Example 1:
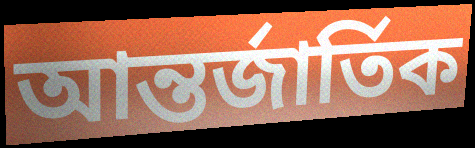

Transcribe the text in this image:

আন্তর্জার্তিক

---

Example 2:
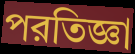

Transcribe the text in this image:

পরতিজ্ঞা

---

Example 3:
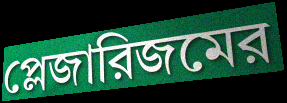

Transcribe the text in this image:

প্লেজারিজমের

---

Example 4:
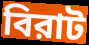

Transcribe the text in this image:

বিরাট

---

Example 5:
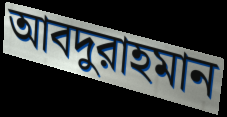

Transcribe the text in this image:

আবদুরাহমান